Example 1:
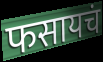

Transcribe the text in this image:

फसायचं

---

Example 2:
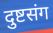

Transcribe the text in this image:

दुष्टसंग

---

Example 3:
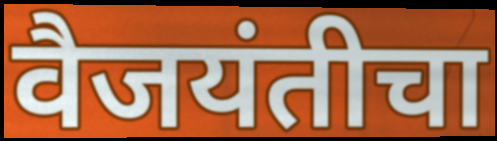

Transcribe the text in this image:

वैजयंतीचा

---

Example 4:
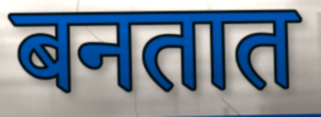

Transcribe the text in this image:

बनतात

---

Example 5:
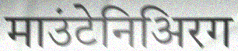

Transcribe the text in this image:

माउंटेनिअिरग